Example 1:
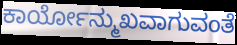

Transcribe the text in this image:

ಕಾರ್ಯೋನ್ಮುಖವಾಗುವಂತೆ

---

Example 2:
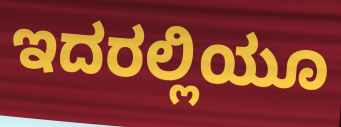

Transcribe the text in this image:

ಇದರಲ್ಲಿಯೂ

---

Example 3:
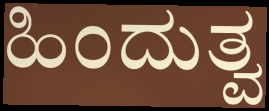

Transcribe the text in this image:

ಹಿಂದುತ್ವ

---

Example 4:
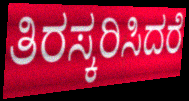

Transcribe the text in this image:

ತಿರಸ್ಕರಿಸಿದರೆ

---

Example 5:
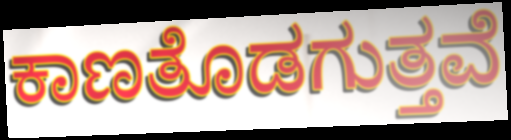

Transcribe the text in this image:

ಕಾಣತೊಡಗುತ್ತವೆ